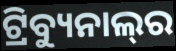
ଟ୍ରିବ୍ୟୁନାଲ୍‍ର